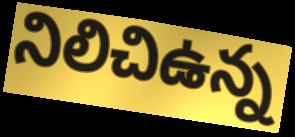
నిలిచిఉన్న